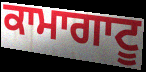
ਕਾਮਾਗਾਟੂ